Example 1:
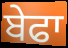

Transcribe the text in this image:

ਬੇਫਾ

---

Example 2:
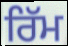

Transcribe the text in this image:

ਰਿੱਮ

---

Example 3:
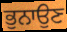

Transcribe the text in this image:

ਭੁਨਾਉਣ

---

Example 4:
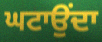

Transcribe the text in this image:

ਘਟਾਉਂਦਾ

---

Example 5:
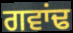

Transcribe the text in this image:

ਗਵਾਂਢ